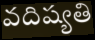
వదిష్యతి